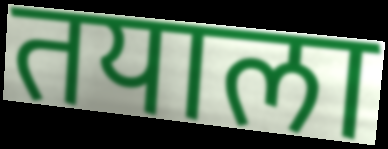
तयाला